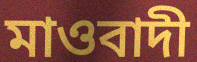
মাওবাদী